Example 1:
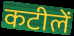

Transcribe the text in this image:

कटीलें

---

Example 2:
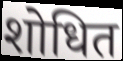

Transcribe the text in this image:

शोधित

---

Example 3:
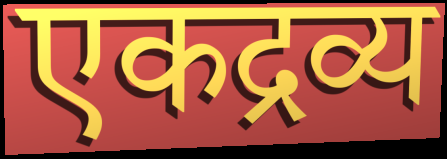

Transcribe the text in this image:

एकद्रव्य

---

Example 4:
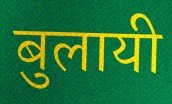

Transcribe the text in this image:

बुलायी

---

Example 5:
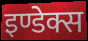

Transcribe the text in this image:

इण्डेक्स